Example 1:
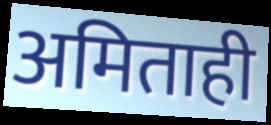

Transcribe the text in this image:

अमिताही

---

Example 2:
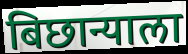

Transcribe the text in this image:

बिछान्याला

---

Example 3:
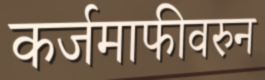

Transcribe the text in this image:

कर्जमाफीवरुन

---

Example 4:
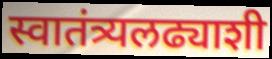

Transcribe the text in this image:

स्वातंत्र्यलढ्याशी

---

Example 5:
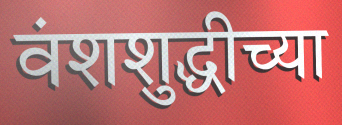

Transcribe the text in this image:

वंशशुद्धीच्या